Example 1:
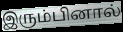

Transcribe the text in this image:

இரும்பினால்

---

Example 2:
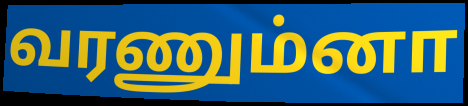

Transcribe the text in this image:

வரணும்னா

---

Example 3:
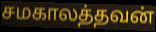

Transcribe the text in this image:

சமகாலத்தவன்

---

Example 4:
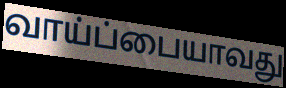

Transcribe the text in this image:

வாய்ப்பையாவது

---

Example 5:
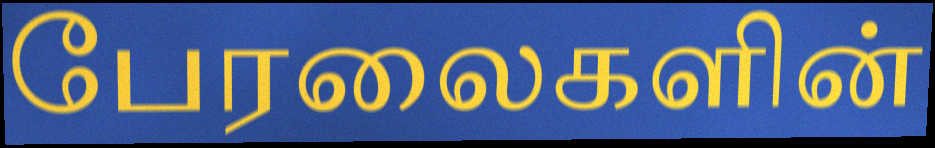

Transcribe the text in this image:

பேரலைகளின்